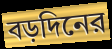
বড়দিনের